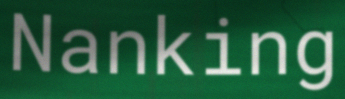
Nanking